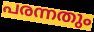
പരന്നതും